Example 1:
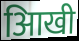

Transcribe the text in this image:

आिखी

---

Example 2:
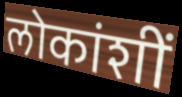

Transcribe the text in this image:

लोकांशीं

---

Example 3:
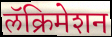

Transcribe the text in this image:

लॅक्रिमेशन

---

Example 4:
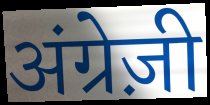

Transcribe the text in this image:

अंग्रेज़ी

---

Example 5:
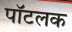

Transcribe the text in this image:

पॉटलक